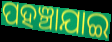
ପହଞ୍ଚାଯାଇ